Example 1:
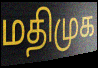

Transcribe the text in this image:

மதிமுக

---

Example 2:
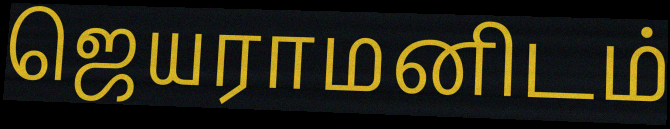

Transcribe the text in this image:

ஜெயராமனிடம்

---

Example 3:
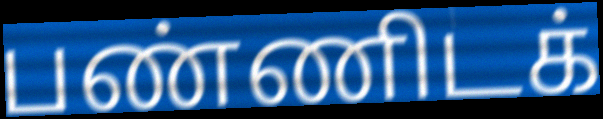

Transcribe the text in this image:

பண்ணிடக்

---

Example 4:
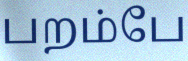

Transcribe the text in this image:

பறம்பே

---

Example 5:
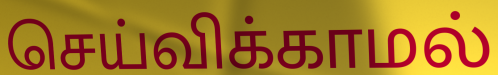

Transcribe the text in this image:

செய்விக்காமல்